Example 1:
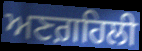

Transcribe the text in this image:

ਅਣਗ਼ਹਿਲੀ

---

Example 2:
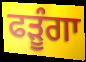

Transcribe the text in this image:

ਫੜੂੰਗਾ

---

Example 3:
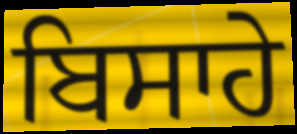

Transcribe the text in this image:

ਬਿਸਾਹੇ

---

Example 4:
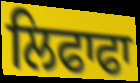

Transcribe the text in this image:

ਲਿਫਾਫਾ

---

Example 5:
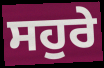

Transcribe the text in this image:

ਸਹੁਰੇ